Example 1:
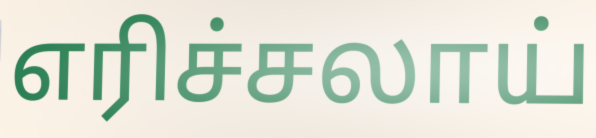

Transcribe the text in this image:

எரிச்சலாய்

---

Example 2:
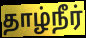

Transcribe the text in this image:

தாழ்நீர்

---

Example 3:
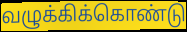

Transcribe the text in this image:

வழுக்கிக்கொண்டு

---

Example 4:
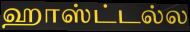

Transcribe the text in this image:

ஹாஸ்ட்டல்ல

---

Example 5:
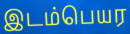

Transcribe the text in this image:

இடம்பெயர